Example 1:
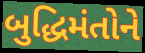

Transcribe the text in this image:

બુદ્ધિમંતોને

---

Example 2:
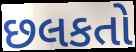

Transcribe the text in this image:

છલકતો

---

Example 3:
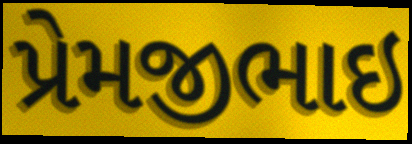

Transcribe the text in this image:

પ્રેમજીભાઇ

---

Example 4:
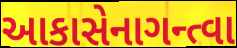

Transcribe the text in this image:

આકાસેનાગન્ત્વા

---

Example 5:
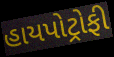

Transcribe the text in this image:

હાયપોટ્રોફી